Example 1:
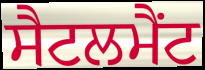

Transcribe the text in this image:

ਸੈਟਲਮੈਂਟ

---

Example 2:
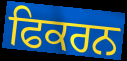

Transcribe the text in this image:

ਫਿਕਰਨ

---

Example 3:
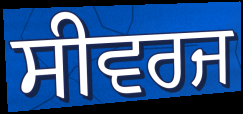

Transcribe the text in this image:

ਸੀਵਰਜ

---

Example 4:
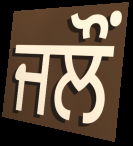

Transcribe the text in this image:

ਜਲੌਂ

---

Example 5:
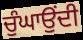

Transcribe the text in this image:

ਚੁੰਘਾਉਂਦੀ